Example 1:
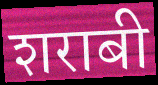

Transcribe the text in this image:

शराबी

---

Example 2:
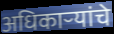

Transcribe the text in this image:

अधिकाऱ्यांचे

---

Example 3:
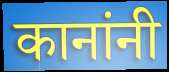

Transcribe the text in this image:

कानांनी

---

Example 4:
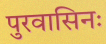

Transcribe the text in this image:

पुरवासिनः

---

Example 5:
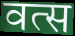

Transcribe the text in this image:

वत्स